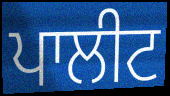
ਪਾਲੀਟ